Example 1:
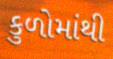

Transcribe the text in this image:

કુળોમાંથી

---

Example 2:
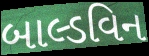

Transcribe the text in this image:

બાલ્ડવિન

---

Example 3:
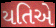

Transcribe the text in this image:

યતિએ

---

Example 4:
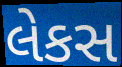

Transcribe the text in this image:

લેકસ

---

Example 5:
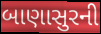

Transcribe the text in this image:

બાણાસુરની